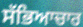
ਸੱਭਿਆਚਾਰ